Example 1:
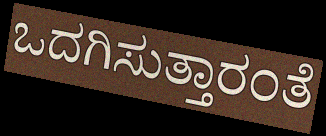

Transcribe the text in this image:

ಒದಗಿಸುತ್ತಾರಂತೆ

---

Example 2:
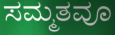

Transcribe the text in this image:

ಸಮ್ಮತವೂ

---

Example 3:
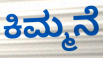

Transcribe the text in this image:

ಕಿಮ್ಮನೆ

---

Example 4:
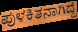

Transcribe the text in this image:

ಪುಳಕಿತನಾಗಿದ್ದೆ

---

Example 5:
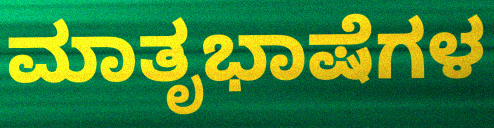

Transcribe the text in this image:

ಮಾತೃಭಾಷೆಗಳ